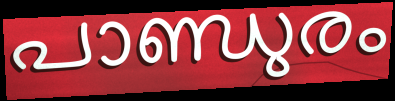
പാണ്ഡുരം